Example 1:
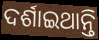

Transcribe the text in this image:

ଦର୍ଶାଇଥାନ୍ତି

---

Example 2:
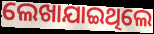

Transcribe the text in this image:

ଲେଖାଯାଇଥିଲେ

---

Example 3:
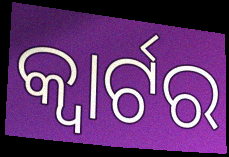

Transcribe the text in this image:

କ୍ଵାର୍ଟର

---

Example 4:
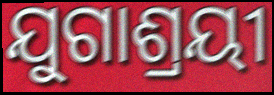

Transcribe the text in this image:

ଯୁଗାଶ୍ରୟୀ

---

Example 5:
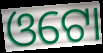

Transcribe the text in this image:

ଓଟୋ